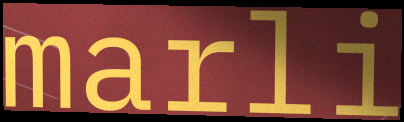
marli